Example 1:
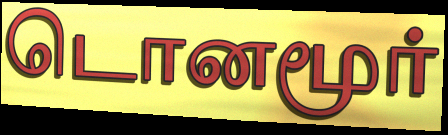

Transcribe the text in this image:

டொனமூர்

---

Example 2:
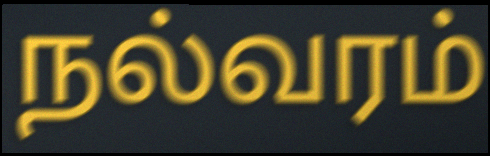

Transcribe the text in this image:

நல்வரம்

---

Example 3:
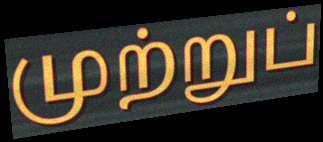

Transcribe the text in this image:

முற்றுப்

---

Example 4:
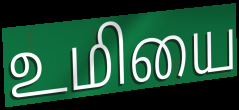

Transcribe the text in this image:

உமியை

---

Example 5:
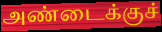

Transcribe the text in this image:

அண்டைக்குச்